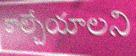
కాల్చేయాలని